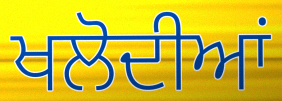
ਖਲੋਦੀਆਂ